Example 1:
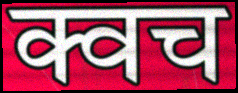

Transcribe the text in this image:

क्वच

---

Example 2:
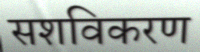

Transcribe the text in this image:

सशविकरण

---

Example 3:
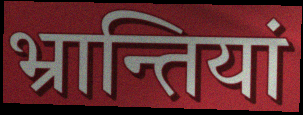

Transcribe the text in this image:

भ्रान्तियां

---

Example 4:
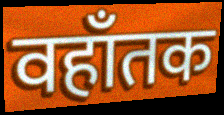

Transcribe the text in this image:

वहाँतक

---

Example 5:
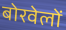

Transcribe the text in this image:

बोरवेलों